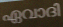
ഏവാദി